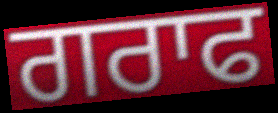
ਗਰਾਫ